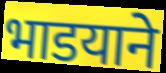
भाडयाने